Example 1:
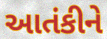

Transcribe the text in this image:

આતંકીને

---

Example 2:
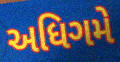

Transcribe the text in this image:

અધિગમે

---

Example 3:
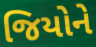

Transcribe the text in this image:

જિયોને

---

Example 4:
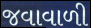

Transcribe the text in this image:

જવાવાળી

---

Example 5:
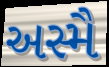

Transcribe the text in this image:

અસ્મૈ